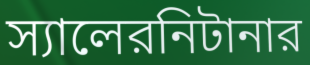
স্যালেরনিটানার